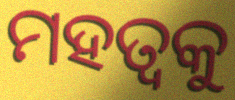
ମହତ୍ଵକୁ